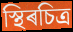
স্থিৰচিত্ৰ